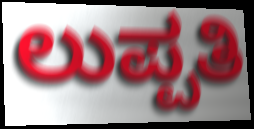
ಲುಪ್ಪತಿ